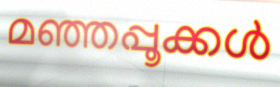
മഞ്ഞപ്പൂക്കൾ